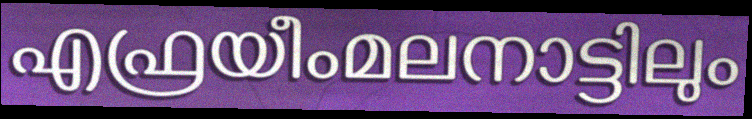
എഫ്രയീംമലനാട്ടിലും